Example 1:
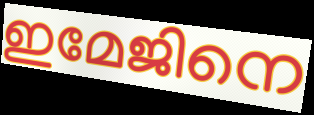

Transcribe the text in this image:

ഇമേജിനെ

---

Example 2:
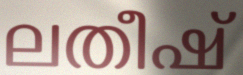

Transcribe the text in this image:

ലതീഷ്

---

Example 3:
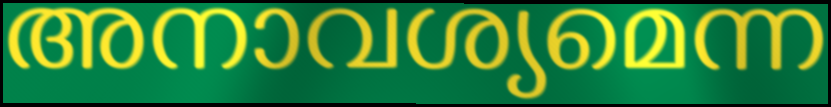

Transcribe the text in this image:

അനാവശ്യമെന്ന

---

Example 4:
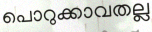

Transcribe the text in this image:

പൊറുക്കാവതല്ല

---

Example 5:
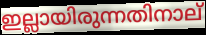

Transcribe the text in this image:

ഇല്ലായിരുന്നതിനാല്